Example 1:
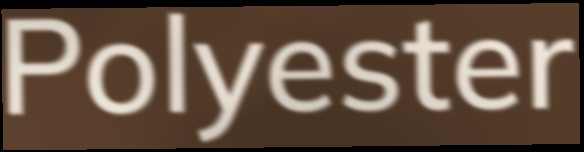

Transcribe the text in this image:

Polyester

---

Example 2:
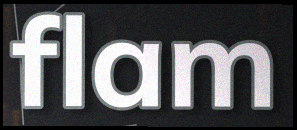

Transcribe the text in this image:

flam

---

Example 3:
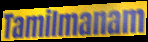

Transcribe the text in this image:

Tamilmanam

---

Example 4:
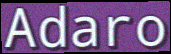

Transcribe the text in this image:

Adaro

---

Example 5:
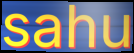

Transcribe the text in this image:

sahu